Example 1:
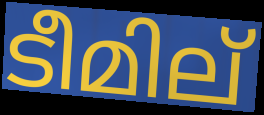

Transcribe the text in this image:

ടീമില്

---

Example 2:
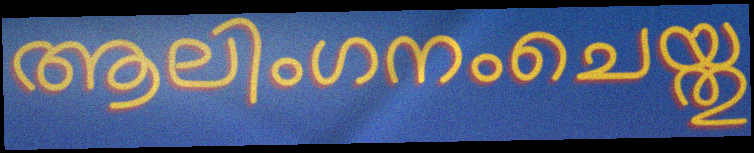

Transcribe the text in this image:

ആലിംഗനംചെയ്തു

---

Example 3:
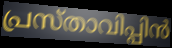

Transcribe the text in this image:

പ്രസ്താവിപ്പിൻ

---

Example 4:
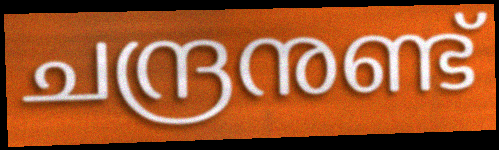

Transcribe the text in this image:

ചന്ദ്രനുണ്ട്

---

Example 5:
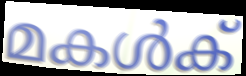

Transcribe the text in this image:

മകൾക്